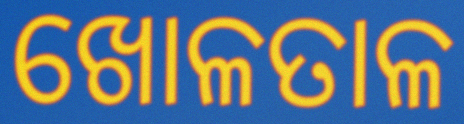
ଖୋଳତାଳ